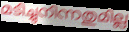
മടിച്ചുനിന്നതുമില്ല